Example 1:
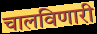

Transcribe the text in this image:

चालविणारी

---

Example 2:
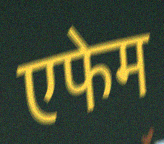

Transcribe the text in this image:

एफेम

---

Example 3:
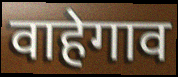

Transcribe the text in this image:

वाहेगाव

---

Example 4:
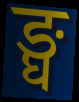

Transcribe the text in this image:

ङ्घ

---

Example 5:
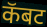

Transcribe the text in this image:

कॅबट